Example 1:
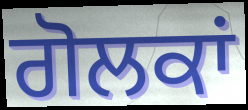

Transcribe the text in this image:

ਗੋਲਕਾਂ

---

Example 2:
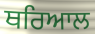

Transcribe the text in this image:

ਥਰਿਆਲ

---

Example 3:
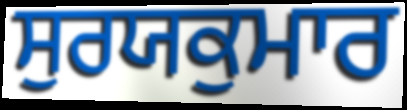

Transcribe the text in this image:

ਸੁਰਯਕੁਮਾਰ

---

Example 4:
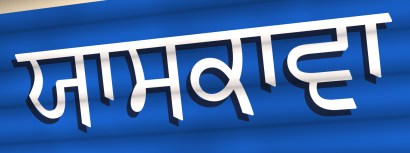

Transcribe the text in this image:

ਯਾਸਕਾਵਾ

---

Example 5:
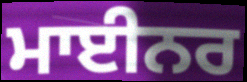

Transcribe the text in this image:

ਮਾਈਨਰ